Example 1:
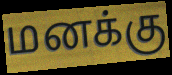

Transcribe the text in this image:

மனக்கு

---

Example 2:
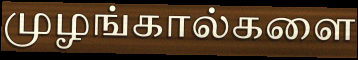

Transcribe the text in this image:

முழங்கால்களை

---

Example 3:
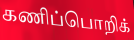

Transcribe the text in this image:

கணிப்பொறிக்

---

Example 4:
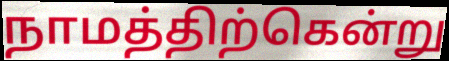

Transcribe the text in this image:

நாமத்திற்கென்று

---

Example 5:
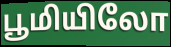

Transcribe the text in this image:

பூமியிலோ